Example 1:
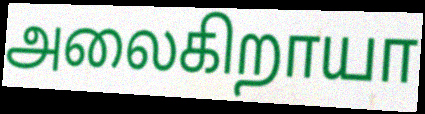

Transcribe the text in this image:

அலைகிறாயா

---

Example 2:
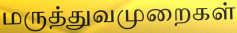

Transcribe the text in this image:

மருத்துவமுறைகள்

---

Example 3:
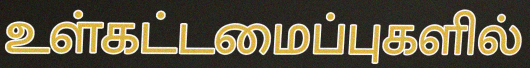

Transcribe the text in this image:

உள்கட்டமைப்புகளில்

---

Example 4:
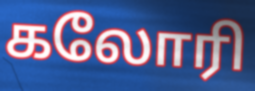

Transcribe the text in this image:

கலோரி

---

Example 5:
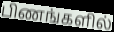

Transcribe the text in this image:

பிணங்களில்